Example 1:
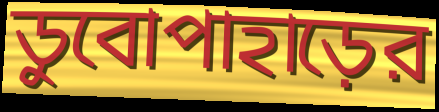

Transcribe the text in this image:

ডুবোপাহাড়ের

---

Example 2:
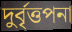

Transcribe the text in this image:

দুর্বৃত্তপনা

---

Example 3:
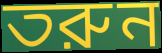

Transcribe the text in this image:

তরুন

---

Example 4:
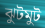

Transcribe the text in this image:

ঝুটমুট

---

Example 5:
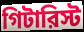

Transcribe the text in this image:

গিটারিস্ট